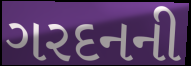
ગરદનની